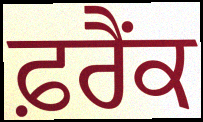
ਫ਼ਰੈਂਕ